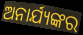
ଅନାର୍ଯ୍ୟଙ୍କର